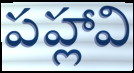
పహ్లావి